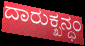
ದಾರುಕ್ಖನ್ಧಂ